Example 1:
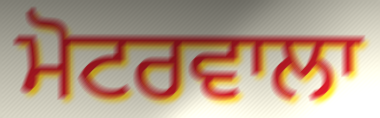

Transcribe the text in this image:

ਮੋਟਰਵਾਲਾ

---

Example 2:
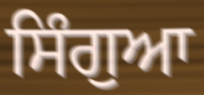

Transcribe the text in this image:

ਸਿੰਗੁਆ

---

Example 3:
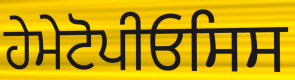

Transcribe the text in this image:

ਹੇਮੇਟੋਪੀਓਸਿਸ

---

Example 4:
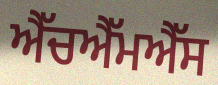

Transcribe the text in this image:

ਐੱਚਐੱਮਐੱਸ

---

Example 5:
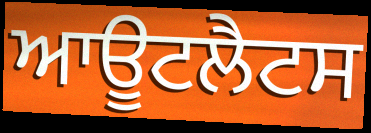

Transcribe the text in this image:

ਆਊਟਲੈਟਸ